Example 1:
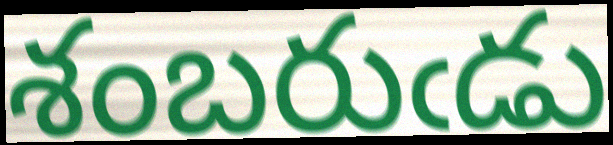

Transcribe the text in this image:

శంబరుఁడు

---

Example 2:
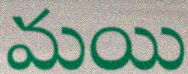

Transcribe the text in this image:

మయి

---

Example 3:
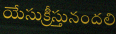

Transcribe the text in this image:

యేసుక్రీస్తునందలి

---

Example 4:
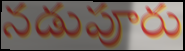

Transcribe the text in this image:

నడుపూరు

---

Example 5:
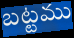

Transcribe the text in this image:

బట్టము